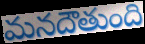
మనదౌతుంది